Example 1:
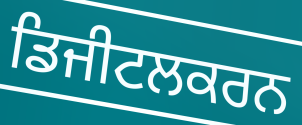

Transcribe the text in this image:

ਡਿਜੀਟਲਕਰਨ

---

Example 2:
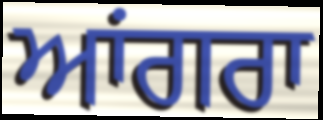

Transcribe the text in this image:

ਆਂਗਰਾ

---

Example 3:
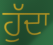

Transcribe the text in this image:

ਹੁੱਦਾ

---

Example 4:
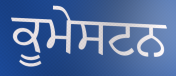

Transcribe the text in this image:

ਕੂਮੇਸਟਨ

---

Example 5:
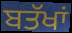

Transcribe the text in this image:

ਬਤੱਖਾਂ